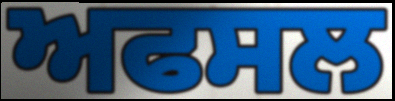
ਅਫਸਲ